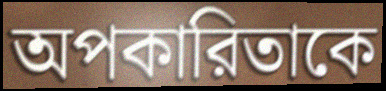
অপকারিতাকে